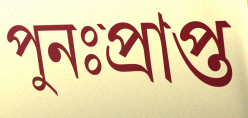
পুনঃপ্রাপ্ত